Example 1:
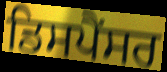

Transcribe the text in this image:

ਡਿਸਪੈਂਸਰ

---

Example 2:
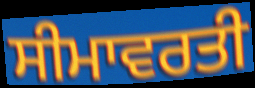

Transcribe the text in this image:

ਸੀਮਾਵਰਤੀ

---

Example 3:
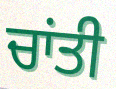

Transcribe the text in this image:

ਚਾਂਤੀ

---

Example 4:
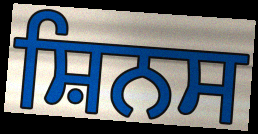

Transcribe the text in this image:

ਸ਼ਿਨਸ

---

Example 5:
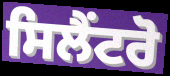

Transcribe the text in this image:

ਸਿਲੈਂਟਰੋ